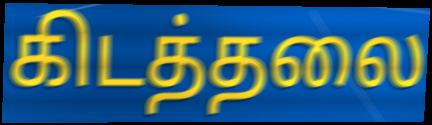
கிடத்தலை